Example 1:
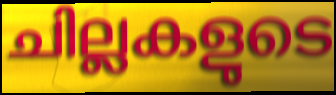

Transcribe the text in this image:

ചില്ലകളുടെ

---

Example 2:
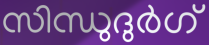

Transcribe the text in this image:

സിന്ധുദുർഗ്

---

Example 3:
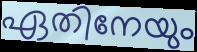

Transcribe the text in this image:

ഏതിനേയും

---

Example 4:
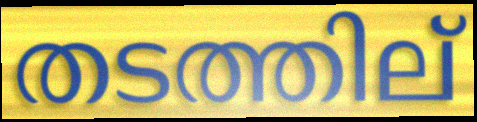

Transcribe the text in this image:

തടത്തില്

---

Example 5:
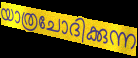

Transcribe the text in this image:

യാത്രചോദിക്കുന്ന